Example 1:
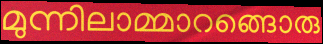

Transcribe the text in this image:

മുന്നിലാമ്മാറങ്ങൊരു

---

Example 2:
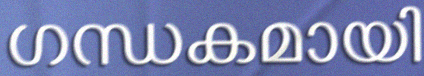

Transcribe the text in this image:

ഗന്ധകമായി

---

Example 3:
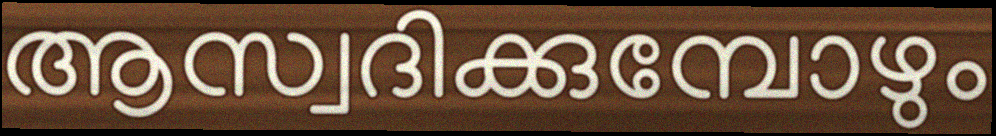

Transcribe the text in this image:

ആസ്വദിക്കുമ്പോഴും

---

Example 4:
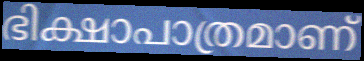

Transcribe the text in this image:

ഭിക്ഷാപാത്രമാണ്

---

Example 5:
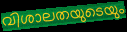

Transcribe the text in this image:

വിശാലതയുടെയും